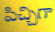
పిచ్చిగా